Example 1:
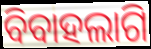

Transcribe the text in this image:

ବିବାହଲାଗି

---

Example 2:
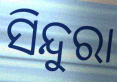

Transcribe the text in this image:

ସିନ୍ଦୁରା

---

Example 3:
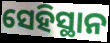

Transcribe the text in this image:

ସେହିସ୍ଥାନ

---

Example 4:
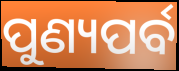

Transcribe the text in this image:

ପୁଣ୍ୟପର୍ବ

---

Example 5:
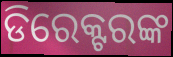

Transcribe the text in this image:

ଡିରେକ୍ଟରଙ୍କ